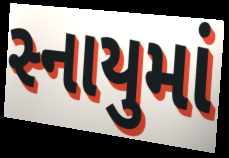
સ્નાયુમાં